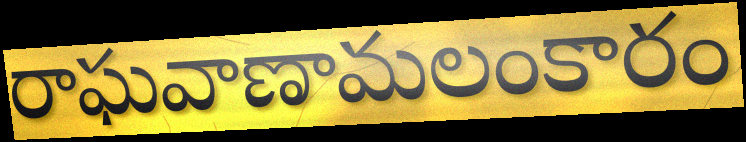
రాఘవాణామలంకారం